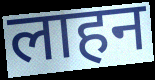
लाहन